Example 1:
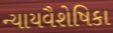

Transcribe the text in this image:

ન્યાયવૈશેષિકા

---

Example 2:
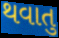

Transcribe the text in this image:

થવાતુ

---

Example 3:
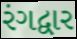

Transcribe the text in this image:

રંગદ્વાર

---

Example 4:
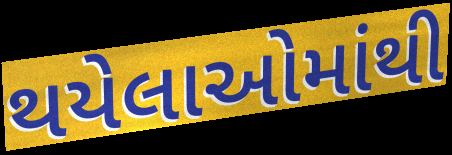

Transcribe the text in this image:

થયેલાઓમાંથી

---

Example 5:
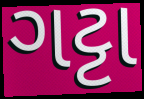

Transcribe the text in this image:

ગટ્ટા